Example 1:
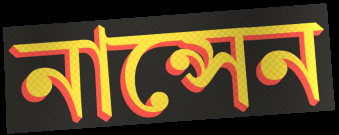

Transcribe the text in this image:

নান্সেন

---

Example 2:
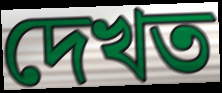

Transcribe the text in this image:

দেখত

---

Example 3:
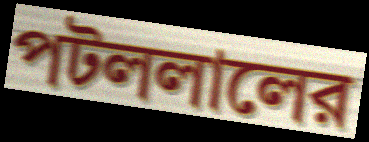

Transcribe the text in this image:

পটললালের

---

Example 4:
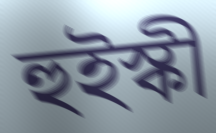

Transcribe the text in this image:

হুইস্কী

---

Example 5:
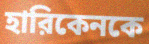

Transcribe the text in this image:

হারিকেনকে